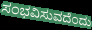
ಸಂಭವಿಸುವದೆಂದು